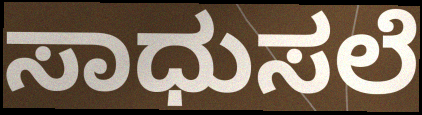
ಸಾಧುಸಲೆ